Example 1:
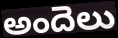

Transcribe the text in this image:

అందెలు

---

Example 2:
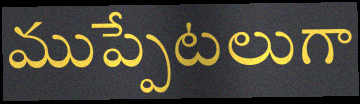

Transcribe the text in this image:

ముప్పేటలుగా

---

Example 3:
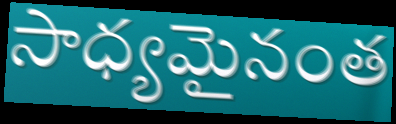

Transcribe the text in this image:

సాధ్యమైనంత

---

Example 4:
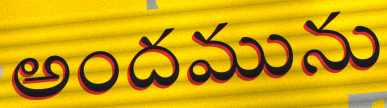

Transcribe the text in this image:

అందమును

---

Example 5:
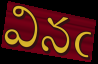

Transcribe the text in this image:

వినఁ